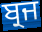
ਬ੍ਰਜ